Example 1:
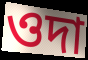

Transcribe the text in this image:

ওদা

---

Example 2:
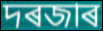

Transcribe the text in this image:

দৰজাৰ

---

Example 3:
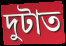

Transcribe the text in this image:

দুটাত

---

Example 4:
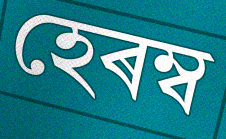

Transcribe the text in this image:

হেৰম্ব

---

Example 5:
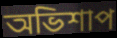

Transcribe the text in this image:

অভিশাপ